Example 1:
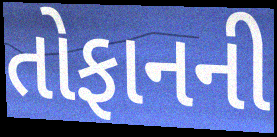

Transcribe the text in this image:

તોફાનની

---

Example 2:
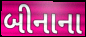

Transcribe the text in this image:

બીનાના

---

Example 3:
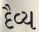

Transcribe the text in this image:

દૈવ્ય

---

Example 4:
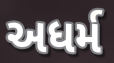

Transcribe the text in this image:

અધર્મ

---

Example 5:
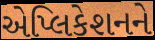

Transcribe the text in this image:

એપ્લિકેશનને